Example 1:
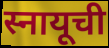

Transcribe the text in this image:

स्नायूची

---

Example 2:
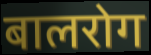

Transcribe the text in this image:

बालरोग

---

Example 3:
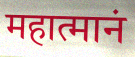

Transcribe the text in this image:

महात्मानं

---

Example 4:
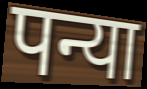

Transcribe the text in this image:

पन्या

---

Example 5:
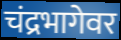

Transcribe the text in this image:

चंद्रभागेवर